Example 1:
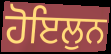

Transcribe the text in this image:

ਹੋਇਲੁਨ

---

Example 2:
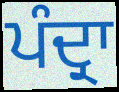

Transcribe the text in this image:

ਪੰਦ੍ਰਾ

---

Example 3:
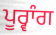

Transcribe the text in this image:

ਪੂਰ੍ਵਾੰਗ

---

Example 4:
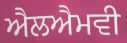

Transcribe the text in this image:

ਐਲਐਮਵੀ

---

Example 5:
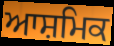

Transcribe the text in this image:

ਆਸ਼ਮਿਕ